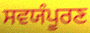
ਸਵਯੰਪੂਰਣ